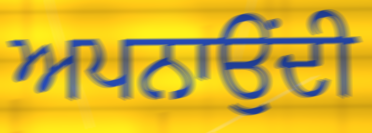
ਅਪਨਾਉਂਦੀ